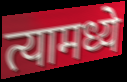
त्यामध्ये